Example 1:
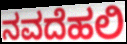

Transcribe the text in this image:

ನವದೆಹಲಿ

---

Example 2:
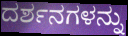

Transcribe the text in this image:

ದರ್ಶನಗಳನ್ನು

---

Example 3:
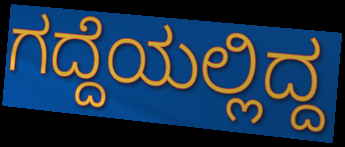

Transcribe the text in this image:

ಗದ್ದೆಯಲ್ಲಿದ್ದ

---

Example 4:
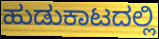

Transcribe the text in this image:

ಹುಡುಕಾಟದಲ್ಲಿ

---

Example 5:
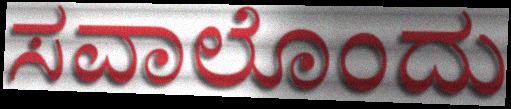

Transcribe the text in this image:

ಸವಾಲೊಂದು